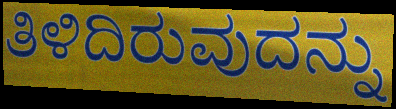
ತಿಳಿದಿರುವುದನ್ನು